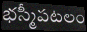
భస్మీపటలం